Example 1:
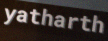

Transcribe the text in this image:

yatharth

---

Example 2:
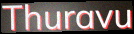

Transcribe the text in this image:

Thuravu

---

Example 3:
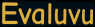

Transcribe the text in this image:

Evaluvu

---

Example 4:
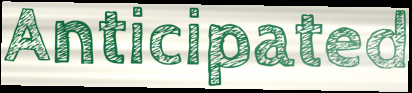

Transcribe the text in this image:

Anticipated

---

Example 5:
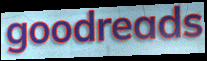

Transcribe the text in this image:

goodreads